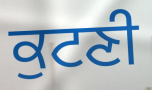
ਕੁਟਣੀ